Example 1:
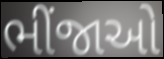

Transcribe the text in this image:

ભીંજાઓ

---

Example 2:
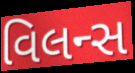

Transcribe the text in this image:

વિલન્સ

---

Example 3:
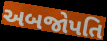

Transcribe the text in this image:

અબજોપતિ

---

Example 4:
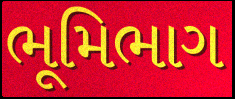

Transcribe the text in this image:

ભૂમિભાગ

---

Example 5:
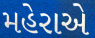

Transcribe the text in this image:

મહેરાએ